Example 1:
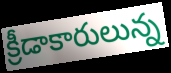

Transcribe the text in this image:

క్రీడాకారులున్న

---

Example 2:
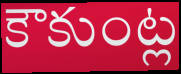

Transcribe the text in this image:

కౌకుంట్ల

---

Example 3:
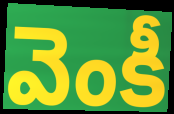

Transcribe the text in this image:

వెంకీ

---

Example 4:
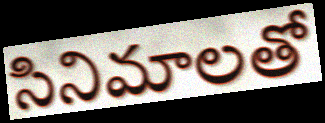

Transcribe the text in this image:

సినిమాలతో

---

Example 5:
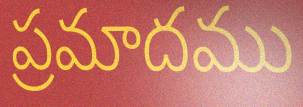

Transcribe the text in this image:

ప్రమాదము